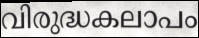
വിരുദ്ധകലാപം